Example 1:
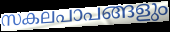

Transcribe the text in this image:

സകലപാപങ്ങളും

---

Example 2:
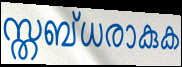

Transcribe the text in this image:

സ്തബ്ധരാകുക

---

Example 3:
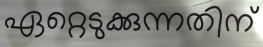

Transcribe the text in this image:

ഏറ്റെടുക്കുന്നതിന്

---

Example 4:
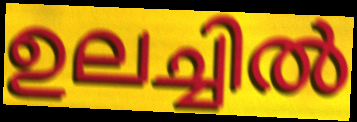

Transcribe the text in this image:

ഉലച്ചിൽ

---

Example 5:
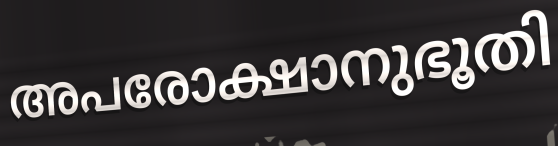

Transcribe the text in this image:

അപരോക്ഷാനുഭൂതി